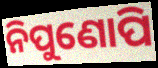
ନିପୁଣୋପି